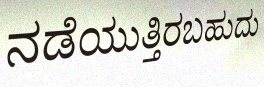
ನಡೆಯುತ್ತಿರಬಹುದು